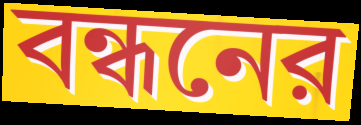
বন্ধনের